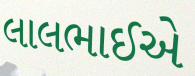
લાલભાઈએ